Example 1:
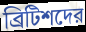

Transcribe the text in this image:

ব্রিটিশদের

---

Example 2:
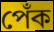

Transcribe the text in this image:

পেঁক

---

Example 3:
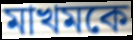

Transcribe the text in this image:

মাখমকে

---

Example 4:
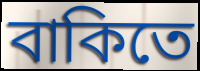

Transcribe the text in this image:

বাকিতে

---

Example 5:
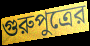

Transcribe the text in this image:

গুরুপুত্রের